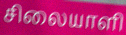
சிலையாளி